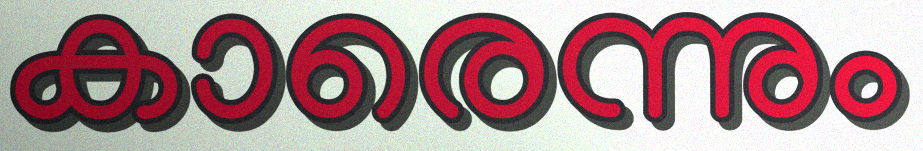
കാരെന്നും